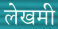
लेखमी